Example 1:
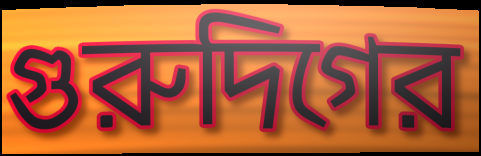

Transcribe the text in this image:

গুরুদিগের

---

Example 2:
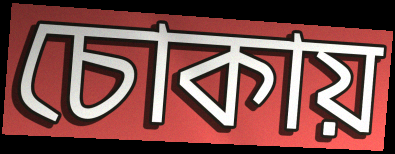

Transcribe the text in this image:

চোকায়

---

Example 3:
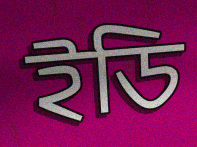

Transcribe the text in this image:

ইডি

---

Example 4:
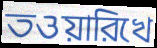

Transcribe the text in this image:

তওয়ারিখে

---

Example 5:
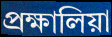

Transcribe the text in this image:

প্রক্ষালিয়া